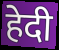
हेदी